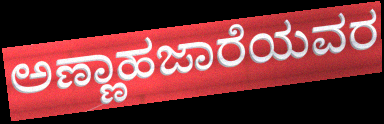
ಅಣ್ಣಾಹಜಾರೆಯವರ